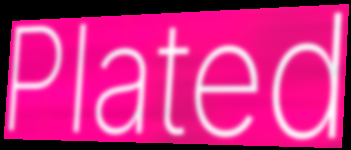
Plated